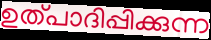
ഉത്പാദിപ്പിക്കുന്ന